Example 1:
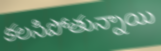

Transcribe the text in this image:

కలసిపోతున్నాయి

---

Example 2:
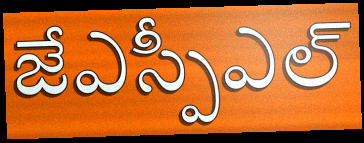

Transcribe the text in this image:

జేఎస్పీఎల్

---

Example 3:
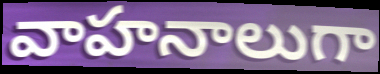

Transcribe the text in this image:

వాహనాలుగా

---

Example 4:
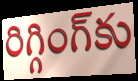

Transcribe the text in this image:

రిగ్గింగ్‌కు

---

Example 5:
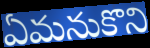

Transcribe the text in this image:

ఏమనుకొని